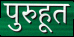
पुरुहूत